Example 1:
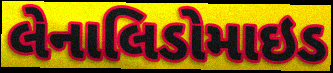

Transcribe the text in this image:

લેનાલિડોમાઇડ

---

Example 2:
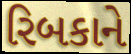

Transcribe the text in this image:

રિબકાને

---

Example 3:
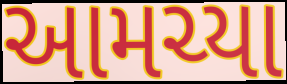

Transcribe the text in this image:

આમચ્યા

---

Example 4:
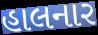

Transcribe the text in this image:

હાલનાર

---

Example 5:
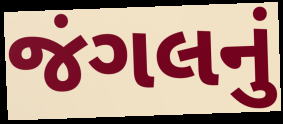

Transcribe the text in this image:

જંગલનું